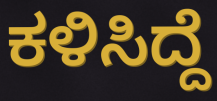
ಕಳಿಸಿದ್ದೆ